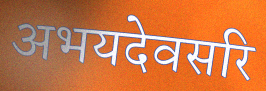
अभयदेवसरि